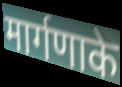
मार्गणाके